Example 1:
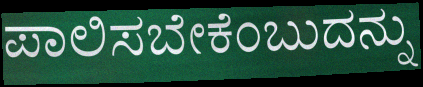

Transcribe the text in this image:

ಪಾಲಿಸಬೇಕೆಂಬುದನ್ನು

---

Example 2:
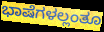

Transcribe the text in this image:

ಭಾಷೆಗಳಲ್ಲಂತೂ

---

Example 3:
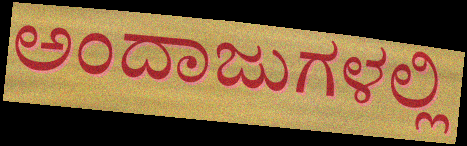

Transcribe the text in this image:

ಅಂದಾಜುಗಳಲ್ಲಿ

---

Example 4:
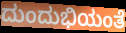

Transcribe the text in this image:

ದುಂದುಭಿಯಂತೆ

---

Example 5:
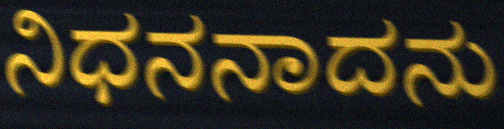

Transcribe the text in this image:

ನಿಧನನಾದನು